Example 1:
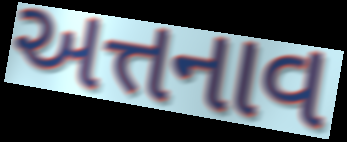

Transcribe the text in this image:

અત્તનાવ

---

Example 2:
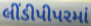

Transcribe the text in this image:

લીંડીપીપરમાં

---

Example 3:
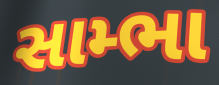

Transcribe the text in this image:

સામ્ભા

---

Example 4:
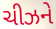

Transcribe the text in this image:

ચીઝને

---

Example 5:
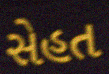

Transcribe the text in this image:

સેહત